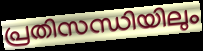
പ്രതിസന്ധിയിലും